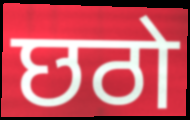
छठो